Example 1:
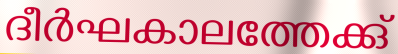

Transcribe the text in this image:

ദീർഘകാലത്തേക്കു്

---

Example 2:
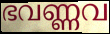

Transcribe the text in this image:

ഭവണ്ണവ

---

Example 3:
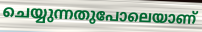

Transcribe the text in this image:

ചെയ്യുന്നതുപോലെയാണ്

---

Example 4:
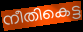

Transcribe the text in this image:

നീതികെട്ട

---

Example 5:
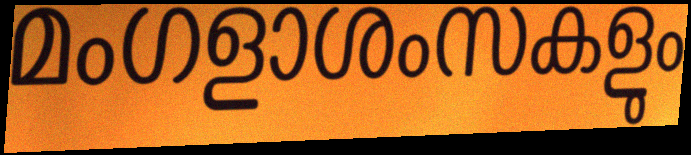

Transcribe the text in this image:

മംഗളാശംസകളും